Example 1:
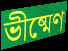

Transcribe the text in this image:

ভীষ্মেণ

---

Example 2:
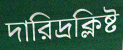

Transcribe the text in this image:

দারিদ্রক্লিষ্ট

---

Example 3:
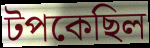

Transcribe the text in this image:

টপকেছিল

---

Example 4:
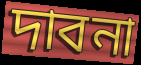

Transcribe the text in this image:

দাবনা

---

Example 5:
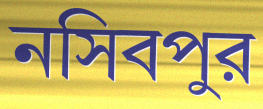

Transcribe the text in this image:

নসিবপুর